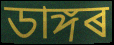
ডাঙ্গৰ